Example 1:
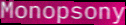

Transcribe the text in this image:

Monopsony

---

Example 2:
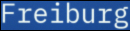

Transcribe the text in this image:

Freiburg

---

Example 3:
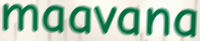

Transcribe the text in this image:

maavana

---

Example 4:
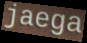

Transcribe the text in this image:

jaega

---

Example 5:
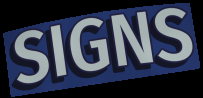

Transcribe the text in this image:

SIGNS